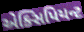
એક્સિપિયન્ટ